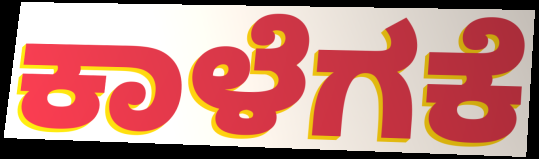
ಕಾಳೆಗಕೆ